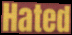
Hated